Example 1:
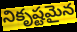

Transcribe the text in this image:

నికృష్టమైన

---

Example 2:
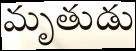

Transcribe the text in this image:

మృతుడు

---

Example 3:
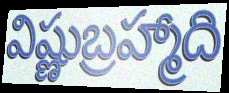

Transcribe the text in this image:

విష్ణుబ్రహ్మాది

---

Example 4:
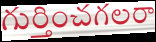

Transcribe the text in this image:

గుర్తించగలరా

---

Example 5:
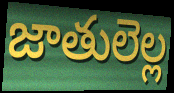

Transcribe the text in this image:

జాతులెల్ల